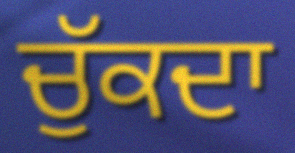
ਚੁੱਕਦਾ